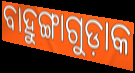
ବାହୁଙ୍ଗାଗୁଡ଼ାକ